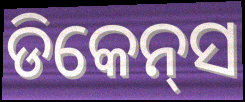
ଡିକେନ୍‌ସ